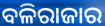
ବଳିରାଜାର